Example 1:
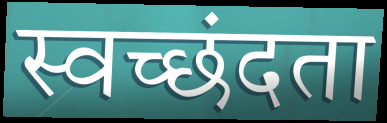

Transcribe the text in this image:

स्वच्छंदता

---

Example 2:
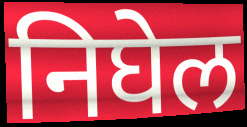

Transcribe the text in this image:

निघेल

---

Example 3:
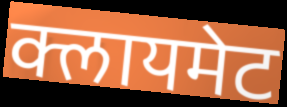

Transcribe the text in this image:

क्लायमेट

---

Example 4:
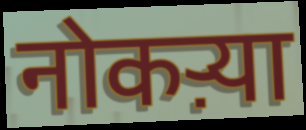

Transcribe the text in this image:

नोकऱ्‍या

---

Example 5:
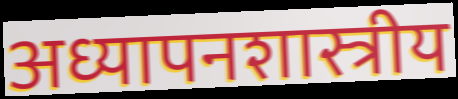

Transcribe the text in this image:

अध्यापनशास्त्रीय